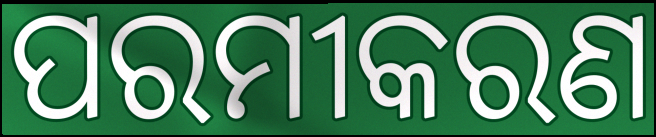
ପରମୀକରଣ